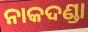
ନାକଦଣ୍ଡା